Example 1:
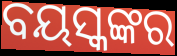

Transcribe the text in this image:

ବୟସ୍କଙ୍କର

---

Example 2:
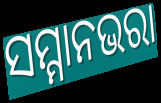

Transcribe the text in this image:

ସମ୍ମାନଭରା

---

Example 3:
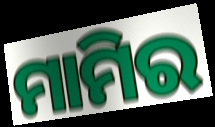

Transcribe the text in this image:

ମାମିର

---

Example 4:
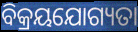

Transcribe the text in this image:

ବିକ୍ରୟଯୋଗ୍ୟତା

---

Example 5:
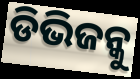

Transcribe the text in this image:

ଡିଭିଜନ୍କୁ